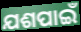
ଯଶପାଇଁ